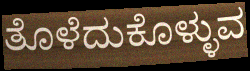
ತೊಳೆದುಕೊಳ್ಳುವ